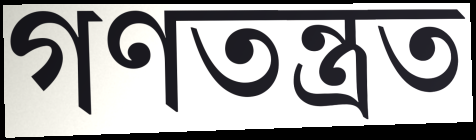
গণতন্ত্ৰত